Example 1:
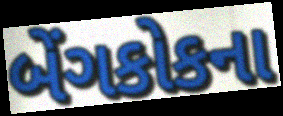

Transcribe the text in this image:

બેંગકોકના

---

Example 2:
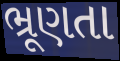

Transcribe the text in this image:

ભ્રૂણતા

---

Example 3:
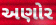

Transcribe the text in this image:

અણોર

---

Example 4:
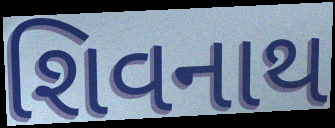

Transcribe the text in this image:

શિવનાથ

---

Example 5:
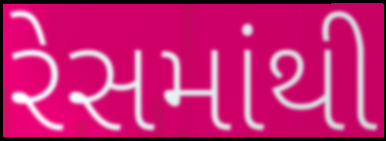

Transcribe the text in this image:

રેસમાંથી